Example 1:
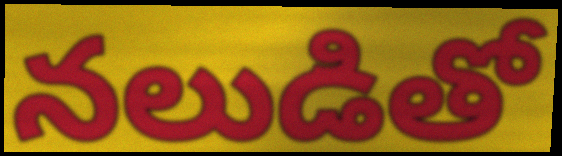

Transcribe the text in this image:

నలుడితో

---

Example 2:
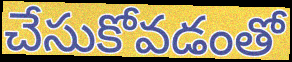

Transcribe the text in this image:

చేసుకోవడంతో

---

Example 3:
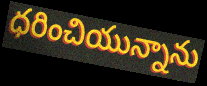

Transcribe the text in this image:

ధరించియున్నాను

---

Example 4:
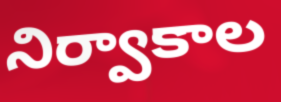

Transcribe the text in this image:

నిర్వాకాల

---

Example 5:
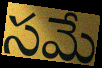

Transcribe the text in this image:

సమే